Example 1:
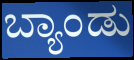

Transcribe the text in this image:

ಬ್ಯಾಂಡು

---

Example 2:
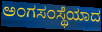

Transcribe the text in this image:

ಅಂಗಸಂಸ್ಥೆಯಾದ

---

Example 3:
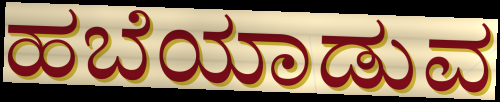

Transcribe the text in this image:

ಹಬೆಯಾಡುವ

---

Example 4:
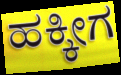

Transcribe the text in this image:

ಹಕ್ಕೀಗ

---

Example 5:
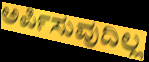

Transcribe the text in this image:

ಅರ್ಪಿಸುವುದಿಲ್ಲ